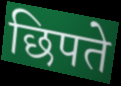
छिपते